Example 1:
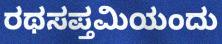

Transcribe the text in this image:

ರಥಸಪ್ತಮಿಯಂದು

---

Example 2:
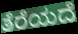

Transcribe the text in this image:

ತೆರೆಯದೆ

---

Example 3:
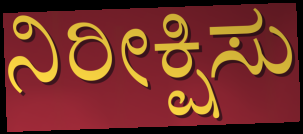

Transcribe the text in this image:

ನಿರೀಕ್ಷಿಸು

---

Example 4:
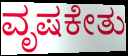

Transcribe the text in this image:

ವೃಷಕೇತು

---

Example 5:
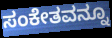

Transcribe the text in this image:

ಸಂಕೇತವನ್ನೂ